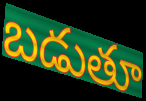
బడుతూ